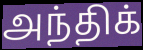
அந்திக்